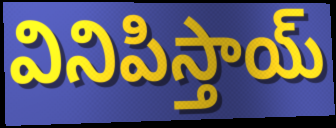
వినిపిస్తాయ్